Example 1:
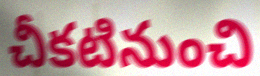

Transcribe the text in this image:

చీకటినుంచి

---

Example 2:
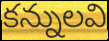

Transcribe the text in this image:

కన్నులవి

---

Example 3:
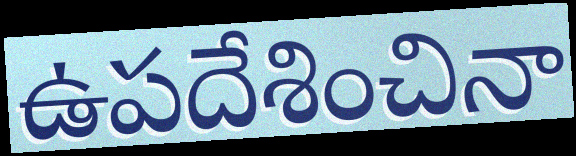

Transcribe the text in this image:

ఉపదేశించినా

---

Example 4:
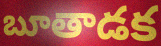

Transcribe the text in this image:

బూతాడక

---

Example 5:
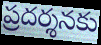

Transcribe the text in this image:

ప్రదర్శనకు